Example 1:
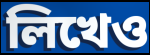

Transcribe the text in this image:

লিখেও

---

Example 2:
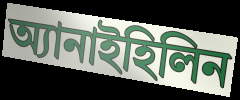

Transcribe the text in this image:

অ্যানাইহিলিন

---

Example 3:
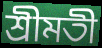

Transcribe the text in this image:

শ্রীমতী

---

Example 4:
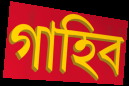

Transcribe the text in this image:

গাহিব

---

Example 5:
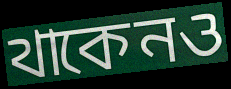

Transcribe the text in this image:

থাকেনও